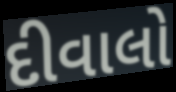
દીવાલો